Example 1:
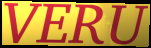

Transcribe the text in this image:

VERU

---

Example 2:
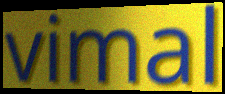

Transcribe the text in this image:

vimal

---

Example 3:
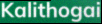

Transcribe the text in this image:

Kalithogai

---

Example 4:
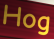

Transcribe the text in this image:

Hog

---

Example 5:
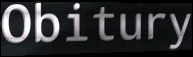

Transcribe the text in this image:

Obitury